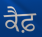
ਕੈਫ਼